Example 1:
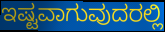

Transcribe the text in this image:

ಇಷ್ಟವಾಗುವುದರಲ್ಲಿ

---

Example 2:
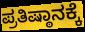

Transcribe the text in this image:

ಪ್ರತಿಷ್ಠಾನಕ್ಕೆ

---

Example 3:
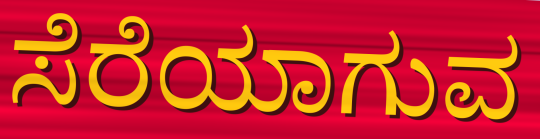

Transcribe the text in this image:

ಸೆರೆಯಾಗುವ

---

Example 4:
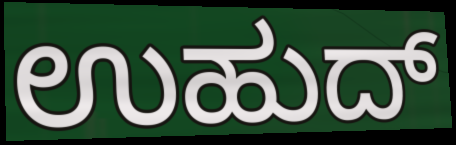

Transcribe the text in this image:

ಉಹುದ್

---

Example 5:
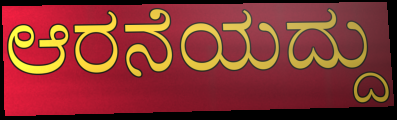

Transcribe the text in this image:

ಆರನೆಯದ್ದು